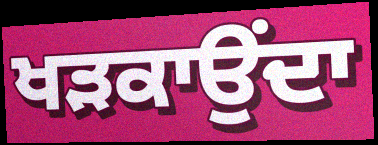
ਖੜਕਾਉਂਦਾ